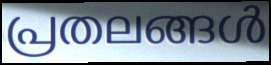
പ്രതലങ്ങൾ